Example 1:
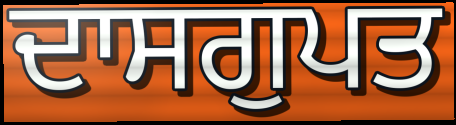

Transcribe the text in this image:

ਦਾਸਗੁਪਤ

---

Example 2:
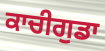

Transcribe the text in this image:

ਕਾਚੀਗੁਡਾ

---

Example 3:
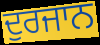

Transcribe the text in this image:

ਦੁਰਜਾਨ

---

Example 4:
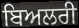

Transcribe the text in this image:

ਬਿਅਲਰੀ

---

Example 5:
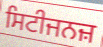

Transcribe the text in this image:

ਸਿਟੀਜਨਜ਼